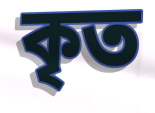
কৃত